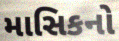
માસિકનો